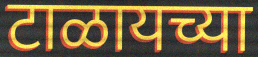
टाळायच्या